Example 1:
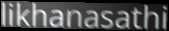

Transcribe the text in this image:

likhanasathi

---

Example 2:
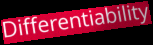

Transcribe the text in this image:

Differentiability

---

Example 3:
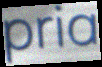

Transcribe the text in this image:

pria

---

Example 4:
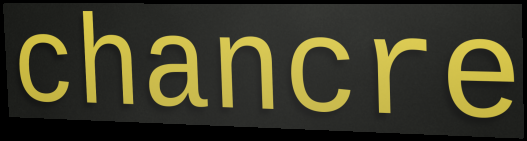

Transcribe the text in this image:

chancre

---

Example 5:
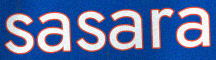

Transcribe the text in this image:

sasara